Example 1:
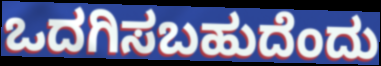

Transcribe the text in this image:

ಒದಗಿಸಬಹುದೆಂದು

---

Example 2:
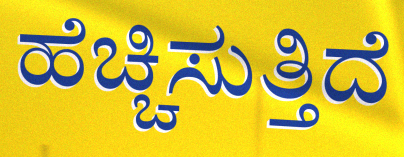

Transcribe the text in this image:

ಹೆಚ್ಚಿಸುತ್ತಿದೆ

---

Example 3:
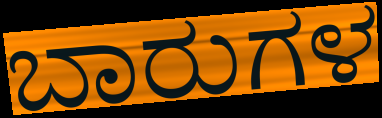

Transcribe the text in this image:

ಬಾರುಗಳ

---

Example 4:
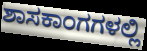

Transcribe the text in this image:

ಶಾಸಕಾಂಗಗಳಲ್ಲಿ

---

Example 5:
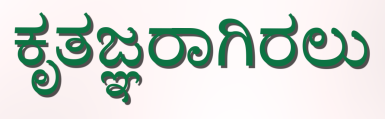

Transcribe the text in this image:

ಕೃತಜ್ಞರಾಗಿರಲು